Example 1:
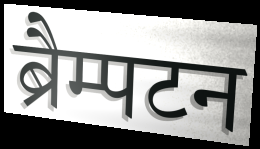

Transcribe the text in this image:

ब्रैम्पटन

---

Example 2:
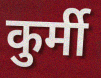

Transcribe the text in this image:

कुर्मी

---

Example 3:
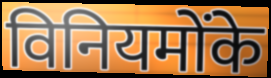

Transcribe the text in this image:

विनियमोंके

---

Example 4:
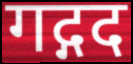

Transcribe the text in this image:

गद्गद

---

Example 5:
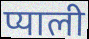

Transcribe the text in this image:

प्याली